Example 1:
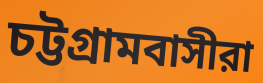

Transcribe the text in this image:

চট্টগ্রামবাসীরা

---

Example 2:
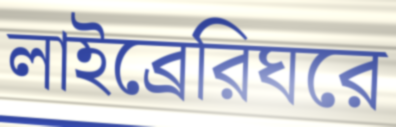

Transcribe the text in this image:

লাইব্রেরিঘরে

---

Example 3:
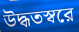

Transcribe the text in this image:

উদ্ধতস্বরে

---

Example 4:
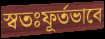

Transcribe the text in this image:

স্বতঃফূর্তভাবে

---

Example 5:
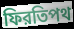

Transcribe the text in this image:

ফিরতিপথ